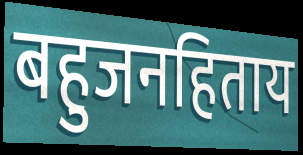
बहुजनहिताय